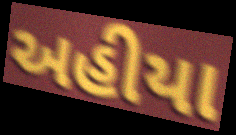
અહીયા